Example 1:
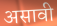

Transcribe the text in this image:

असावी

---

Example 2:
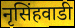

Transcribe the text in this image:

नृसिंहवाडी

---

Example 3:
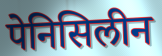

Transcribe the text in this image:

पेनिसिलीन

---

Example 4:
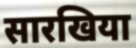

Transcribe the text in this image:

सारखिया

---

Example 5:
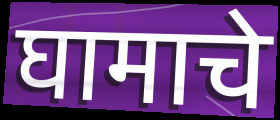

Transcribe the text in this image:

घामाचे